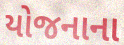
યોજનાના